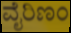
ವೈರಿಣಂ